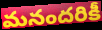
మనందరికీ